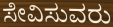
ಸೇವಿಸುವರು